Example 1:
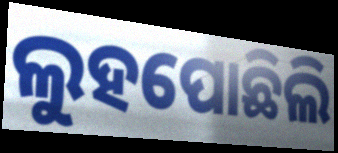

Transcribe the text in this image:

ଲୁହପୋଛିଲି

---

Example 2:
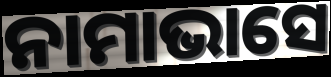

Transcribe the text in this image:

ନାମାଭାସେ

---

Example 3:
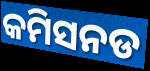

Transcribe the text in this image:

କମିସନଡ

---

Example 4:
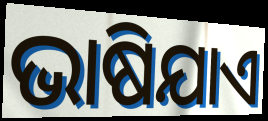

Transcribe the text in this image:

ଭାଷିଯାଏ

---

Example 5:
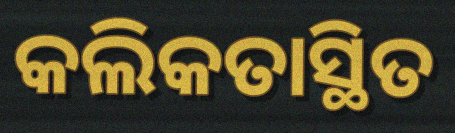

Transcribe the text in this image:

କଲିକତାସ୍ଥିତ